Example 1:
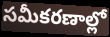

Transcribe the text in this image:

సమీకరణాల్లో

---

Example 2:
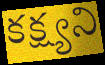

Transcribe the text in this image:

కక్ష్యని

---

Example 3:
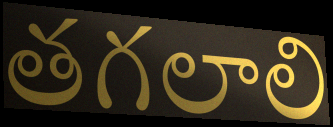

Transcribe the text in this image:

తగలాలి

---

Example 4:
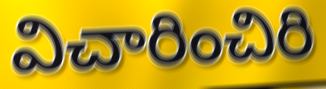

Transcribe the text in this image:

విచారించిరి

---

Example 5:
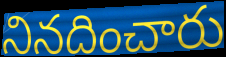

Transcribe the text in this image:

నినదించారు